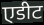
एडीट